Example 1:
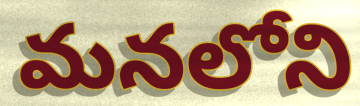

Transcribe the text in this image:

మనలోని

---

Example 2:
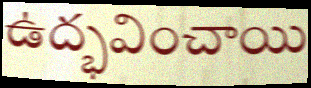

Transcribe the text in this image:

ఉద్భవించాయి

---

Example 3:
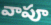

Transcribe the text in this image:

వాపూ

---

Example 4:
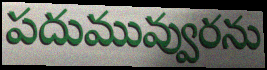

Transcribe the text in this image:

పదుమువ్వురను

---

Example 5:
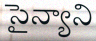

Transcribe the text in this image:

సైన్యాని